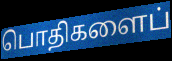
பொதிகளைப்